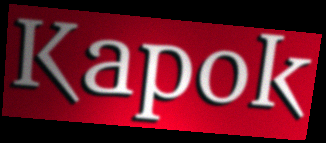
Kapok